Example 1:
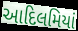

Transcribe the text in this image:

આદિલમિયાં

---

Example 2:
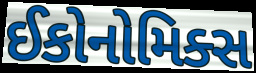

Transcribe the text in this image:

ઈકોનોમિક્સ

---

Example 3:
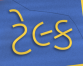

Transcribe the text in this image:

ટેલ્ક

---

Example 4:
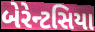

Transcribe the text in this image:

બેરેન્ટસિયા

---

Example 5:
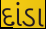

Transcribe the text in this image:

દાંડા